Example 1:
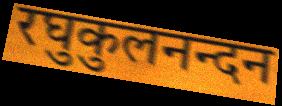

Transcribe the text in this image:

रघुकुलनन्दन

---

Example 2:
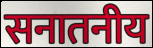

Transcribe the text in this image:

सनातनीय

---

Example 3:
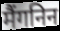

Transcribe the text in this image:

मैंगनिन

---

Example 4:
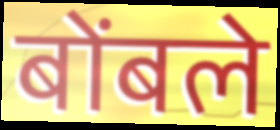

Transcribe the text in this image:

बोंबले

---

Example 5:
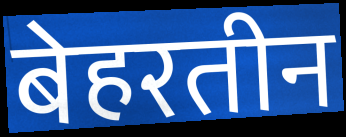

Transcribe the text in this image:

बेहरतीन